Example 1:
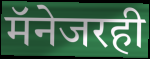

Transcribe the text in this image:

मॅनेजरही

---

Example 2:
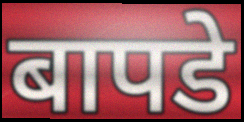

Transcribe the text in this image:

बापडे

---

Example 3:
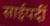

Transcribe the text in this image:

साईपदीं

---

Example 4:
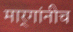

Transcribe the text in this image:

मार्गांनीच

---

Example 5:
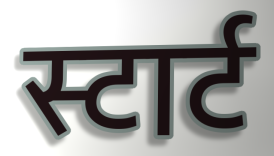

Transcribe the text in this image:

स्टार्ट